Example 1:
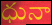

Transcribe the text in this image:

ధునా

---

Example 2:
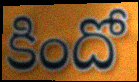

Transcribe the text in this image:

కిందో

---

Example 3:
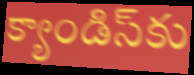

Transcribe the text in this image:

క్యాండిస్‌కు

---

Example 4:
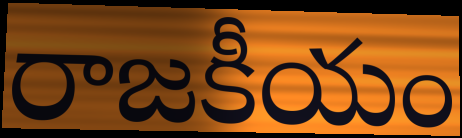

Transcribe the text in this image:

రాజకీయం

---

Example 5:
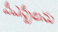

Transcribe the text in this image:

పీఎస్బీలను